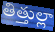
తిత్తుల్లా